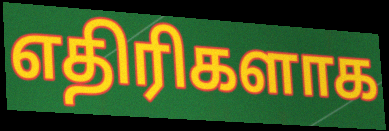
எதிரிகளாக